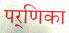
पर्णिका